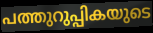
പത്തുറുപ്പികയുടെ